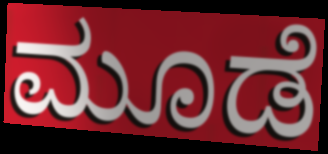
ಮೂಡೆ